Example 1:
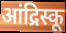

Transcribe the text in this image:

आंद्रिस्कू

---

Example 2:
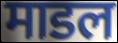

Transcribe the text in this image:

माडल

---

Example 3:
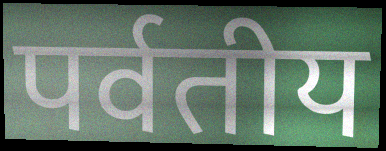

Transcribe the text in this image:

पर्वतीय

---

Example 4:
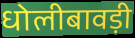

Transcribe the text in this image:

धोलीबावड़ी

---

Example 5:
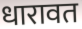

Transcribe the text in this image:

धारावत